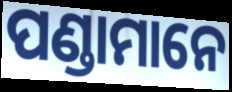
ପଣ୍ଡାମାନେ